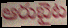
ఆరుబైట